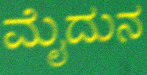
ಮೈದುನ